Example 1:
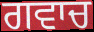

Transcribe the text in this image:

ਗਵਾਚ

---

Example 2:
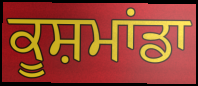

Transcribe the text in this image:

ਕੂਸ਼ਮਾਂਡਾ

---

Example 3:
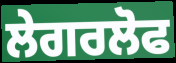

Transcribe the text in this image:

ਲੇਗਰਲੋਫ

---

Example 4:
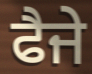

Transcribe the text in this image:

ਫੈਜੇ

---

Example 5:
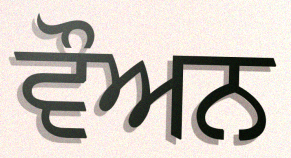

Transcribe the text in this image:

ਵੌਅਨ